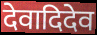
देवादिदेव